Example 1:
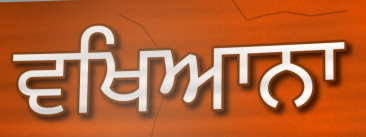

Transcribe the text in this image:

ਵਖਿਆਨਾ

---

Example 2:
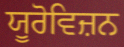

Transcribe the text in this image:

ਯੂਰੋਵਿਜ਼ਨ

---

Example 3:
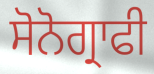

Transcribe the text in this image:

ਸੋਨੋਗ੍ਰਾਫੀ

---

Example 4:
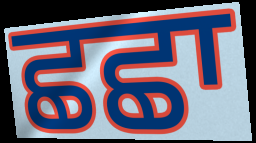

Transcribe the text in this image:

ਛਛਾ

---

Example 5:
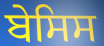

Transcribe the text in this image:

ਬੇਸਿਸ